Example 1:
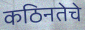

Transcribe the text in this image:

कठिनतेचे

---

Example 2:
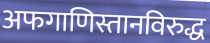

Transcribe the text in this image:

अफगाणिस्तानविरुद्ध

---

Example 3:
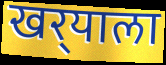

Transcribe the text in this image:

खर्‍याला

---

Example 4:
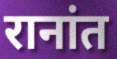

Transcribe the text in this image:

रानांत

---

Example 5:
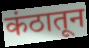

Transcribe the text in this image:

कंठातून